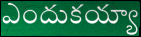
ఎందుకయ్యా